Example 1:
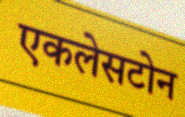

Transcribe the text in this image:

एकलेसटोन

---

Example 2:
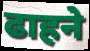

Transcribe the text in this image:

ढाहने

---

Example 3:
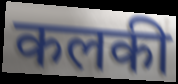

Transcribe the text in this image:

कलकी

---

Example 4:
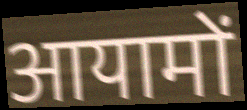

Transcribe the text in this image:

आयामों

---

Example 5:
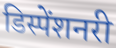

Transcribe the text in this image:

डिस्पेंशनरी